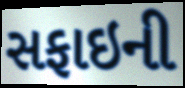
સફાઇની